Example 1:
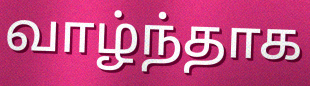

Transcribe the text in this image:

வாழ்ந்தாக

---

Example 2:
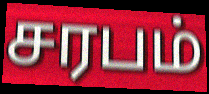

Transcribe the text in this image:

சரபம்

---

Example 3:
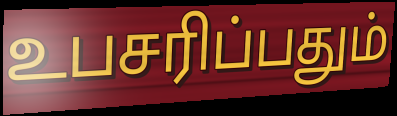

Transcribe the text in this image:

உபசரிப்பதும்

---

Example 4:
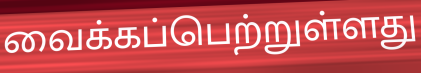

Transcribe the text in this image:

வைக்கப்பெற்றுள்ளது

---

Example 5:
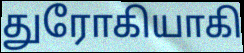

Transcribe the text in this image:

துரோகியாகி